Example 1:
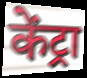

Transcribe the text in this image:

केंट्रा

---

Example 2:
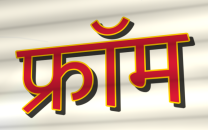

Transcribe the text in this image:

फ्रॉम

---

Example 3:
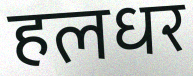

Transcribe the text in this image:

हलधर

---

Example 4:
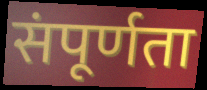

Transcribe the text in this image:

संपूर्णता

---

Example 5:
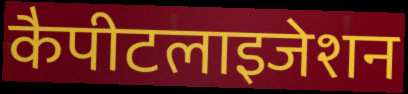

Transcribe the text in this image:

कैपीटलाइजेशन